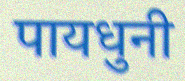
पायधुनी